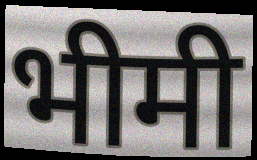
भीमी